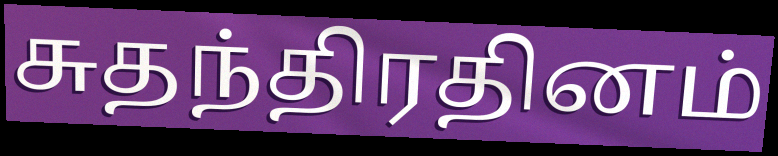
சுதந்திரதினம்